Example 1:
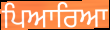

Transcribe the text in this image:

ਪਿਆਰਿਆ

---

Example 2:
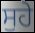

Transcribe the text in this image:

ਸੁਹੇ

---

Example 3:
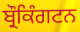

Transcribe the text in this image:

ਬ੍ਰੌਕਿੰਗਟਨ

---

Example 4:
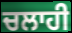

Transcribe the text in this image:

ਚਲਾਹੀ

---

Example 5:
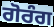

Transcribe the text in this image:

ਗੋਰੰਗ